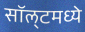
सॉल्टमध्ये